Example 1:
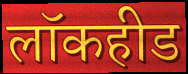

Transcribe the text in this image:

लॉकहीड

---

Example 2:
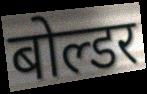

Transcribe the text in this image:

बोल्डर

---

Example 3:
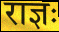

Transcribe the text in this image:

राज्ञः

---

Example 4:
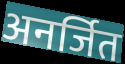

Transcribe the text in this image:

अनर्जित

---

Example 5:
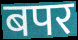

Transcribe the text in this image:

बपर